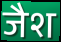
जैश